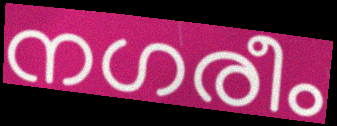
നഗരീം